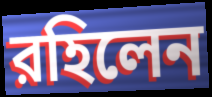
রহিলেন